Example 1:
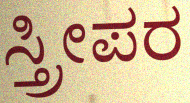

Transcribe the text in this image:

ಸ್ತ್ರೀಪರ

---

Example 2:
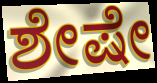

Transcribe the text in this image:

ಶೇಷೇ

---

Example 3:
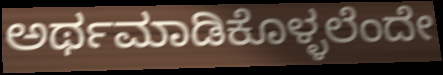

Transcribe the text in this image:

ಅರ್ಥಮಾಡಿಕೊಳ್ಳಲೆಂದೇ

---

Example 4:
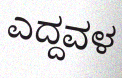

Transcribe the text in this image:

ಎದ್ದವಳ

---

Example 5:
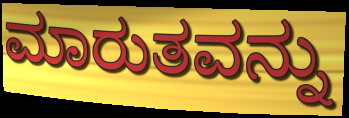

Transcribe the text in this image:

ಮಾರುತವನ್ನು